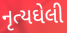
નૃત્યઘેલી